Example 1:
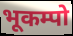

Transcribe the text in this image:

भूकम्पो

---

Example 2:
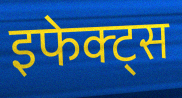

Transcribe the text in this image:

इफेक्‍ट्स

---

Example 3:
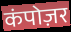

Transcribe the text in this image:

कंपोज़र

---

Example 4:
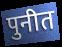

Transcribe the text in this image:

पुनीत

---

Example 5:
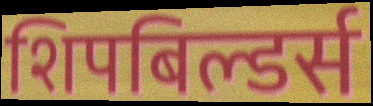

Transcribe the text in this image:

शिपबिल्डर्स